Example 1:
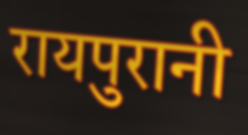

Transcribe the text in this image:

रायपुरानी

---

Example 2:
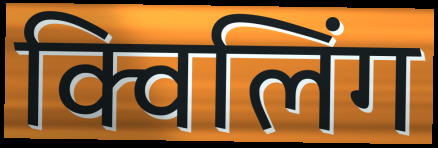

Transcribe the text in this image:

क्विलिंग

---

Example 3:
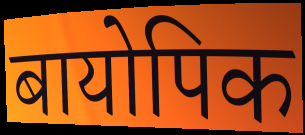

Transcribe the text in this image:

बायोपिक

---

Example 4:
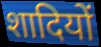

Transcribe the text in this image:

शादियों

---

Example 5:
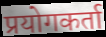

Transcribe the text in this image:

प्रयोगकर्ता